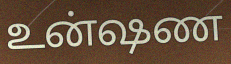
உன்ஷண